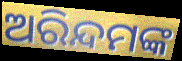
ଅରିନ୍ଦମଙ୍କ